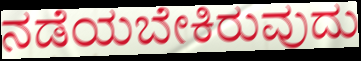
ನಡೆಯಬೇಕಿರುವುದು